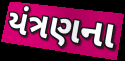
યંત્રણના